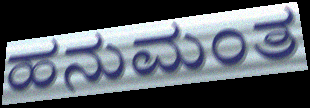
ಹನುಮಂತ